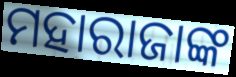
ମହାରାଜାଙ୍କ